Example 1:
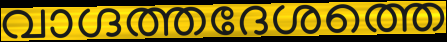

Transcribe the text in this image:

വാഗ്ദത്തദേശത്തെ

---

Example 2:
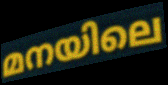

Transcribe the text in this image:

മനയിലെ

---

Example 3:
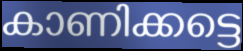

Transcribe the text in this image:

കാണിക്കട്ടെ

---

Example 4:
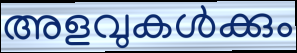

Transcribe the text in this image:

അളവുകൾക്കും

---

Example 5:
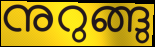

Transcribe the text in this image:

നുറുങ്ങു